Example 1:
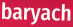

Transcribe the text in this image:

baryach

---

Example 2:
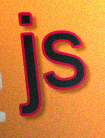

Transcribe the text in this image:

js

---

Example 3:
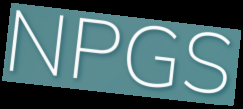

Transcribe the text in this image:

NPGS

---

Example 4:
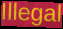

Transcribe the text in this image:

Illegal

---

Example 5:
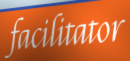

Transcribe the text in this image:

facilitator